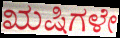
ಋಷಿಗಳೇ